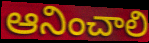
ఆనించాలి